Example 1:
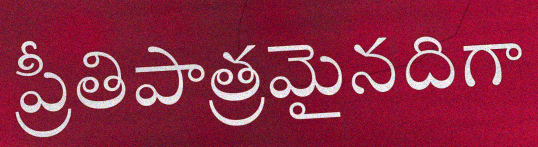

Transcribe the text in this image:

ప్రీతిపాత్రమైనదిగా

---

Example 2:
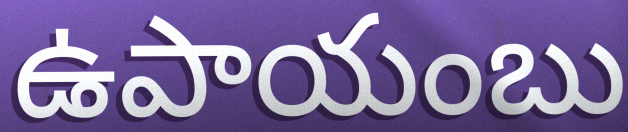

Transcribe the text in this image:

ఉపాయంబు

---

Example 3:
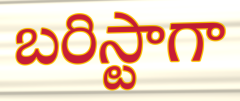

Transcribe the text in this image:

బరిస్టాగా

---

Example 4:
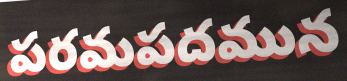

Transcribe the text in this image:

పరమపదమున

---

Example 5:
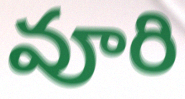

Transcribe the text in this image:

వూరి